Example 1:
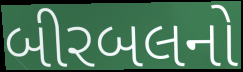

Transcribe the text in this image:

બીરબલનો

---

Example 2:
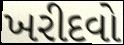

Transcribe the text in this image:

ખરીદવો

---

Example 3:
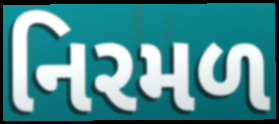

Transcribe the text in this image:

નિરમળ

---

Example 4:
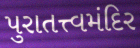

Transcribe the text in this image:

પુરાતત્ત્વમંદિર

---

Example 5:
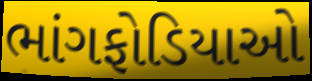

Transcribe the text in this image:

ભાંગફોડિયાઓ